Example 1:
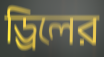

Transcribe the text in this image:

ড্রিলের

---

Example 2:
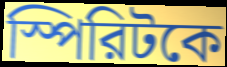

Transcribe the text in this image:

স্পিরিটকে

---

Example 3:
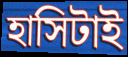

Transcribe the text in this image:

হাসিটাই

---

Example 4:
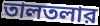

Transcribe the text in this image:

তালতলার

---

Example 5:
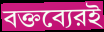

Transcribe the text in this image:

বক্তব্যেরই